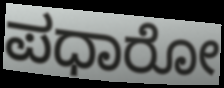
ಪಧಾರೋ